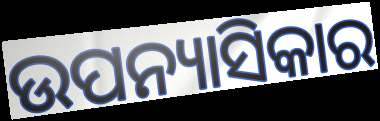
ଉପନ୍ୟାସିକାର